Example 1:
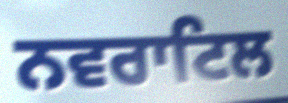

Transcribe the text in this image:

ਨਵਰਾਟਿਲ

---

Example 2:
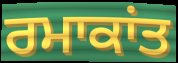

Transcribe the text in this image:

ਰਮਾਕਾਂਤ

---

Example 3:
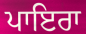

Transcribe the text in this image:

ਪਾਇਰਾ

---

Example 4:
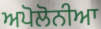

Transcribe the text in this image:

ਅਪੋਲੋਨੀਆ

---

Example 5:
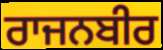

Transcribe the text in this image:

ਰਾਜਨਬੀਰ